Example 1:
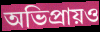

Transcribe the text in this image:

অভিপ্রায়ও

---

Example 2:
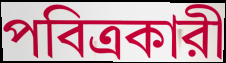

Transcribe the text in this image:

পবিত্রকারী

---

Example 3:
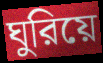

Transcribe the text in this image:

ঘুরিয়ে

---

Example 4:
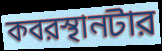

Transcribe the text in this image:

কবরস্থানটার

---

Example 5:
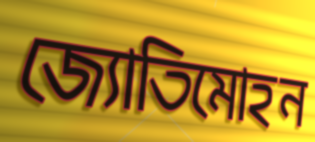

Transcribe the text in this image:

জ্যোতিমোহন